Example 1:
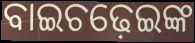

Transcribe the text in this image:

ବାଇଚଢ଼େଇଙ୍କ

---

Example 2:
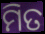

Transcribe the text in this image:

ମିତ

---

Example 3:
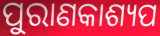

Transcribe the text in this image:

ପୁରାଣକାଶ୍ୟପ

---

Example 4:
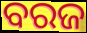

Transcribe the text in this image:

ବରଜ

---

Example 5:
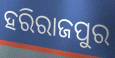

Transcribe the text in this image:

ହରିରାଜପୁର